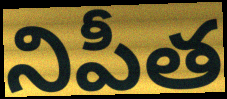
నిపీత